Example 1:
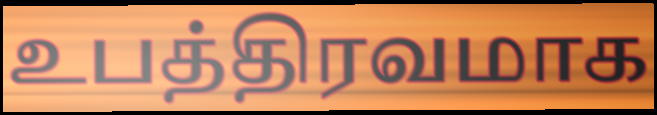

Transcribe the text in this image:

உபத்திரவமாக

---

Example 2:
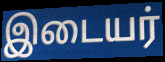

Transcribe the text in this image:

இடையர்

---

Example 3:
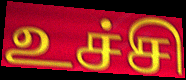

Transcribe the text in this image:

உச்சி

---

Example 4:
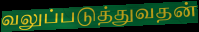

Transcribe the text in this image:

வலுப்படுத்துவதன்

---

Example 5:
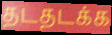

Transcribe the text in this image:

தடதடக்க